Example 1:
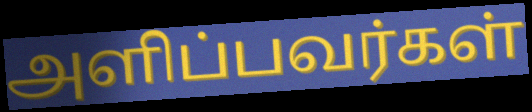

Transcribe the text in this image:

அளிப்பவர்கள்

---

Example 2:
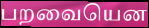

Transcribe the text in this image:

பறவையென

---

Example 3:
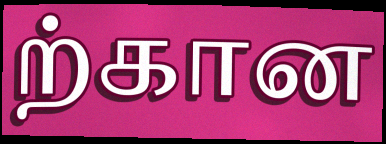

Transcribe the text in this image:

ற்கான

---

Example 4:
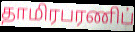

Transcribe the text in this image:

தாமிரபரணிப்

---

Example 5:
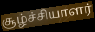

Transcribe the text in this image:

சூழ்ச்சியாளர்